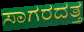
ಸಾಗರದತ್ತ